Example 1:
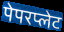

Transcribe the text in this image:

पेपरप्लेट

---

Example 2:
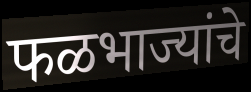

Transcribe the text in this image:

फळभाज्यांचे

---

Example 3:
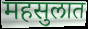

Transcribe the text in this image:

महसुलात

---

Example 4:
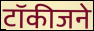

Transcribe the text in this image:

टॉकीजने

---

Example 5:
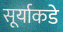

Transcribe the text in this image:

सूर्याकडे